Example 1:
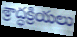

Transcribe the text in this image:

శ్రాద్ధక్రియలు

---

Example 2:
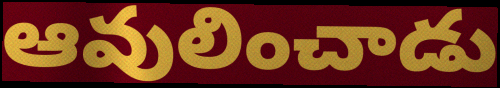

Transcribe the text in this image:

ఆవులించాడు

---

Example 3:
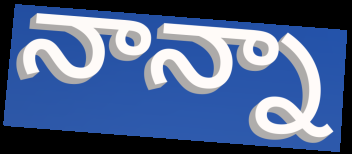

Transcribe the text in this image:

నాన్నా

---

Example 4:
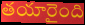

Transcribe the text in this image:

తయారైంది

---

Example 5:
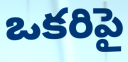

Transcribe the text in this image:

ఒకరిపై